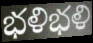
భళిభళి